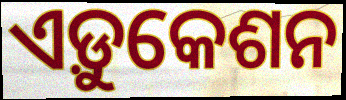
ଏଡ଼ୁକେଶନ